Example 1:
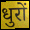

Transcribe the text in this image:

धुरों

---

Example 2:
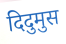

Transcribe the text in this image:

दिदुमुस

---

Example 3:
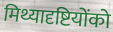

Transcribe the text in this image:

मिथ्यादृष्टियोंको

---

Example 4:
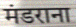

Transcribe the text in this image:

मंडराना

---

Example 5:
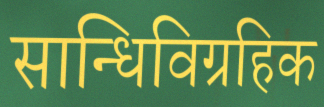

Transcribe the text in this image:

सान्धिविग्रहिक